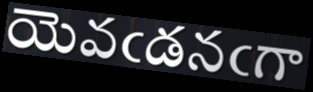
యెవఁడనఁగా